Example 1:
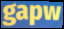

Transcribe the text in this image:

gapw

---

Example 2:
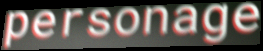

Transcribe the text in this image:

personage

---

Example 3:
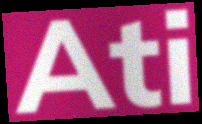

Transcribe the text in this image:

Ati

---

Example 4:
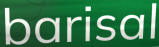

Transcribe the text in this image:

barisal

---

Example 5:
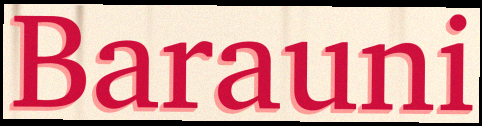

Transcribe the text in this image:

Barauni